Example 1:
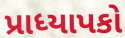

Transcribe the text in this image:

પ્રાધ્યાપકો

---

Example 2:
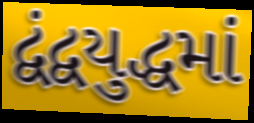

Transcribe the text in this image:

દ્વંદ્વયુદ્ધમાં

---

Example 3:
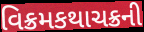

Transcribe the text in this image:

વિક્રમકથાચક્રની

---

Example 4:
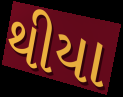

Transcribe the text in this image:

થીયા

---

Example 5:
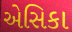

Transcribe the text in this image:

એસિકા